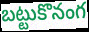
బట్టుకొనంగ